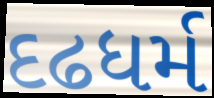
દઢધર્મ